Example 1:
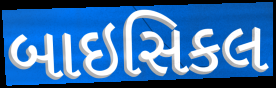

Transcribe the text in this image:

બાઇસિકલ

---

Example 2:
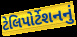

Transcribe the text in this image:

ટેલિપોર્ટેશનનું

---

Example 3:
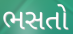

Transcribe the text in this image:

ભસતો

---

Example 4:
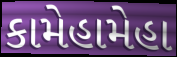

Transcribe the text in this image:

કામેહામેહા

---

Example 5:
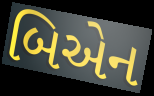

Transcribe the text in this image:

બિએન